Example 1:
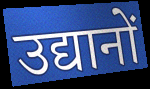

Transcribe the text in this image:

उद्यानों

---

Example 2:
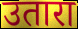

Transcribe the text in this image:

उतारा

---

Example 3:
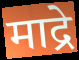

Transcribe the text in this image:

माद्रे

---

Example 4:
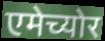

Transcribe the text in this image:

एमेच्योर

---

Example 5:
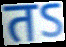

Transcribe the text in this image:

तऽ